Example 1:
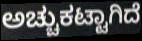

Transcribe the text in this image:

ಅಚ್ಚುಕಟ್ಟಾಗಿದೆ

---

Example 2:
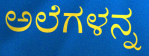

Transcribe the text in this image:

ಅಲೆಗಳನ್ನ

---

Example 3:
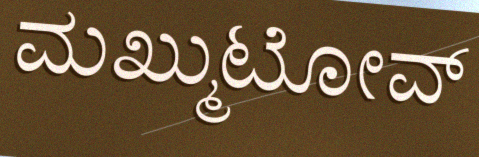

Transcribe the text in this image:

ಮಖ್ಮುಟೋವ್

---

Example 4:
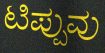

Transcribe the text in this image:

ಟಿಪ್ಪುವು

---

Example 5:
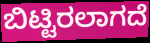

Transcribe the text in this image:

ಬಿಟ್ಟಿರಲಾಗದೆ